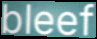
bleef